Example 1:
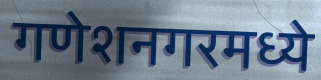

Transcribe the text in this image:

गणेशनगरमध्ये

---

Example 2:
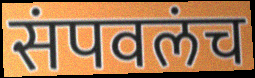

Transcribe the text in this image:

संपवलंच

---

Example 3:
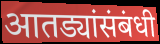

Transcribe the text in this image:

आतड्यांसंबंधी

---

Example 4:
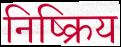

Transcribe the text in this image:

निष्क्रिय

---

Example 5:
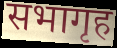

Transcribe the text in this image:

सभागृह